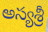
అస్యశ్రీ